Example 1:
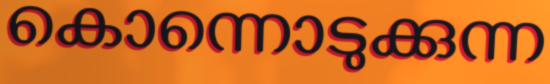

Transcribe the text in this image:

കൊന്നൊടുക്കുന്ന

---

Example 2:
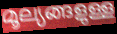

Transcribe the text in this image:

മൂല്യങ്ങളുള്ള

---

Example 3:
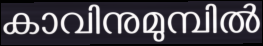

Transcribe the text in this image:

കാവിനുമുമ്പിൽ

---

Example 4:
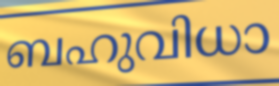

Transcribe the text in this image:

ബഹുവിധാ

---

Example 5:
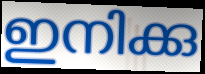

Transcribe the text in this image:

ഇനിക്കു